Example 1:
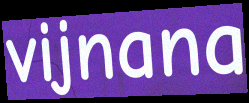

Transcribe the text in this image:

vijnana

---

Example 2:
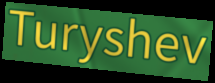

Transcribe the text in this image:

Turyshev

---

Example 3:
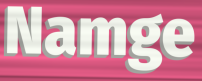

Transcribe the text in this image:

Namge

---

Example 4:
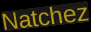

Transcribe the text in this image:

Natchez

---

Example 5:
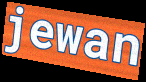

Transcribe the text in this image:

jewan